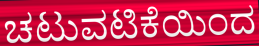
ಚಟುವಟಿಕೆಯಿಂದ